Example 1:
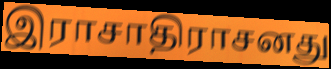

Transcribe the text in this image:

இராசாதிராசனது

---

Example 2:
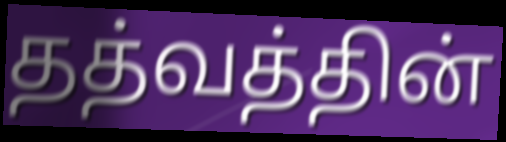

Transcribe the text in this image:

தத்வத்தின்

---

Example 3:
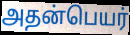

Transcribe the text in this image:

அதன்பெயர்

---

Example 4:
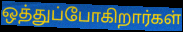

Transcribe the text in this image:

ஒத்துப்போகிறார்கள்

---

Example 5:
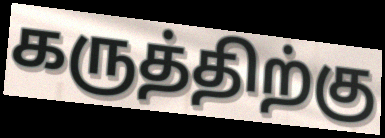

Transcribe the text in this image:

கருத்திற்கு